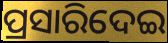
ପ୍ରସାରିଦେଇ